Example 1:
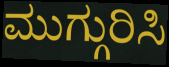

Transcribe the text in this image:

ಮುಗ್ಗುರಿಸಿ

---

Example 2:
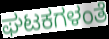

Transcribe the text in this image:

ಘಟಕಗಳಂತೆ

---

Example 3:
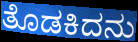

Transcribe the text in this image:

ತೊಡಕಿದನು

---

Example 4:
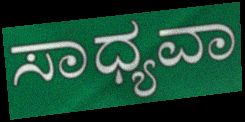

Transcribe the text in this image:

ಸಾಧ್ಯವಾ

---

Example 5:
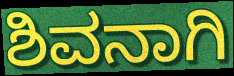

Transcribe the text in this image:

ಶಿವನಾಗಿ